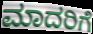
ಮಾದರಿಗೆ